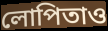
লোপিতাও